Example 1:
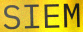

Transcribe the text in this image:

SIEM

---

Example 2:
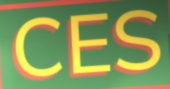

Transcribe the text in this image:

CES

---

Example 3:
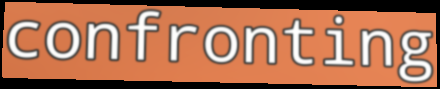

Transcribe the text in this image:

confronting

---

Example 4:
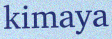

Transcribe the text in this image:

kimaya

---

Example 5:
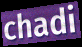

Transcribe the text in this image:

chadi